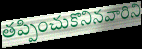
తప్పించుకొనినవారిని